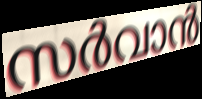
സർവാൻ